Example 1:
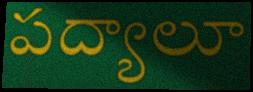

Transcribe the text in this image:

పద్యాలూ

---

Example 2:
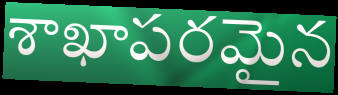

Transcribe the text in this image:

శాఖాపరమైన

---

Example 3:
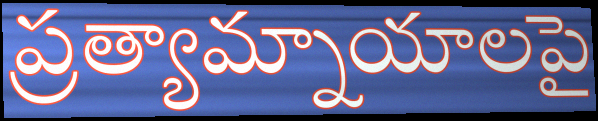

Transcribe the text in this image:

ప్రత్యామ్నాయాలపై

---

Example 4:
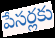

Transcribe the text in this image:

పేసర్లకు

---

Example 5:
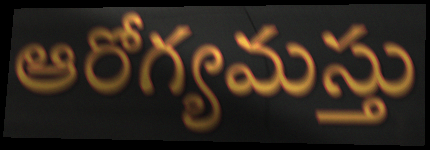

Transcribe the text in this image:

ఆరోగ్యమస్తు